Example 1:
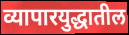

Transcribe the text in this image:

व्यापारयुद्धातील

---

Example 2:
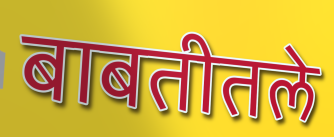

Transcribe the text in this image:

बाबतीतले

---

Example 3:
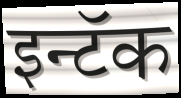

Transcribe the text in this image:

इन्टॅक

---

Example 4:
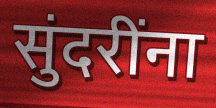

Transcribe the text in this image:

सुंदरींना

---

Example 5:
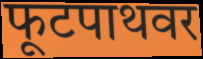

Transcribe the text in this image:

फूटपाथवर